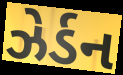
ઝેર્ડન